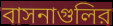
বাসনাগুলির